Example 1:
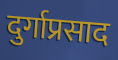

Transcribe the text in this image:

दुर्गाप्रसाद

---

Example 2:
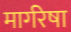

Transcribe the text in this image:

मार्गरेषा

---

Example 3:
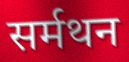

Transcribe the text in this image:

सर्मथन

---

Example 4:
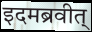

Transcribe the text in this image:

इदमब्रवीत्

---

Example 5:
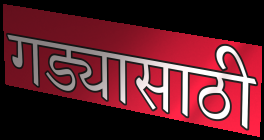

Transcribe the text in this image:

गड्यासाठी